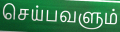
செய்பவளும்